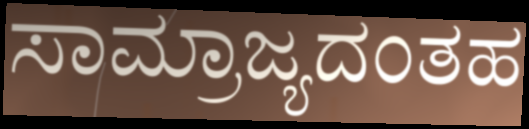
ಸಾಮ್ರಾಜ್ಯದಂತಹ